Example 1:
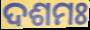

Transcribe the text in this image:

ଦଶମଃ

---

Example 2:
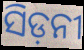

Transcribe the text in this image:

ସିଡ଼ନୀ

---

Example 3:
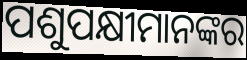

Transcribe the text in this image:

ପଶୁପକ୍ଷୀମାନଙ୍କର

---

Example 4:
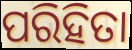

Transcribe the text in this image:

ପରିହିତା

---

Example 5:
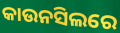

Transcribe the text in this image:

କାଉନସିଲରେ